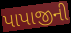
પાપાજીની